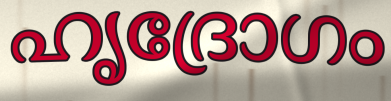
ഹൃദ്രോഗം